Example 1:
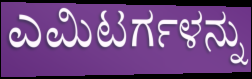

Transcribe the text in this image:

ಎಮಿಟರ್ಗಳನ್ನು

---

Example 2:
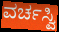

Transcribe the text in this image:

ವರ್ಚಸ್ವಿ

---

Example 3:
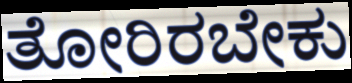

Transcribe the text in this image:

ತೋರಿರಬೇಕು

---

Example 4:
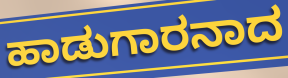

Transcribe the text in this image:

ಹಾಡುಗಾರನಾದ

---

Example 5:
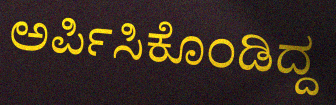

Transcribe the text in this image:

ಅರ್ಪಿಸಿಕೊಂಡಿದ್ದ